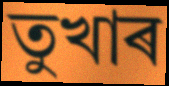
তুখাৰ